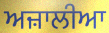
ਅਜ਼ਾਲੀਆ